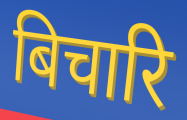
बिचारि